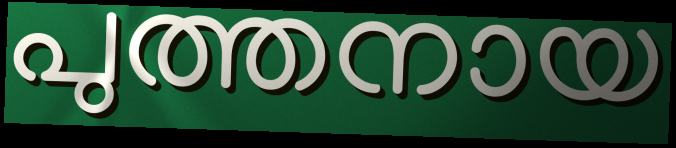
പുത്തനായ